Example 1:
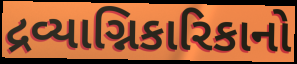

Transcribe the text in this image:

દ્રવ્યાગ્નિકારિકાનો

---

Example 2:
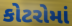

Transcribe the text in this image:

કોટરોમાં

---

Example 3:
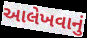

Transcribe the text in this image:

આલેખવાનું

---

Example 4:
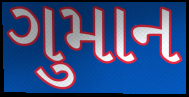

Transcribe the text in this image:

ગુમાન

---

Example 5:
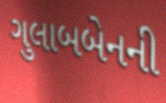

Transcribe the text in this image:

ગુલાબબેનની